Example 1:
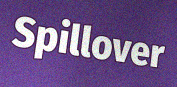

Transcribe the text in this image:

Spillover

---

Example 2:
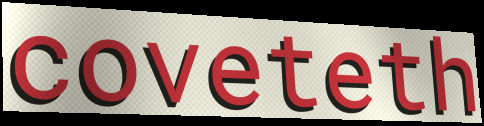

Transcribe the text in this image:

coveteth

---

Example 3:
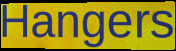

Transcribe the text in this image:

Hangers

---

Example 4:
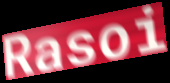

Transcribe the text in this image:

Rasoi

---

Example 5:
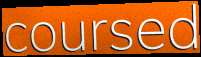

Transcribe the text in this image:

coursed